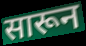
सारून